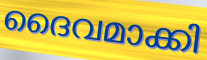
ദൈവമാക്കി